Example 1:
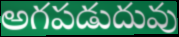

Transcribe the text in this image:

అగపడుదువు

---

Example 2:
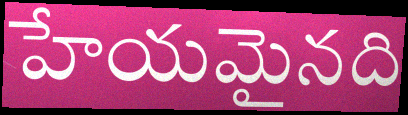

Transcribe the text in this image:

హేయమైనది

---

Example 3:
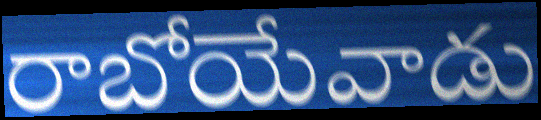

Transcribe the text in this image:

రాబోయేవాడు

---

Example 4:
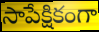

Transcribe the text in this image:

సాపేక్షికంగా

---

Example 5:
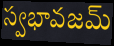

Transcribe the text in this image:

స్వభావజమ్